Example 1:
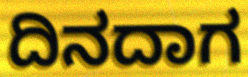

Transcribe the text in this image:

ದಿನದಾಗ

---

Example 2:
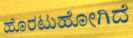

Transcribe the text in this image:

ಹೊರಟುಹೋಗಿದೆ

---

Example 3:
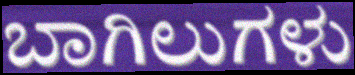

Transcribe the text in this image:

ಬಾಗಿಲುಗಳು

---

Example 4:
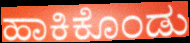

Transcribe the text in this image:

ಹಾಕಿಕೊಂಡು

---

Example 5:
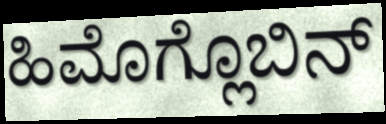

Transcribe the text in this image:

ಹಿಮೊಗ್ಲೊಬಿನ್